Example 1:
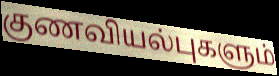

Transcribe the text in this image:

குணவியல்புகளும்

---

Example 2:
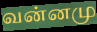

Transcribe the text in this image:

வன்னமு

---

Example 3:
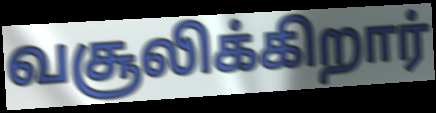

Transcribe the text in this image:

வசூலிக்கிறார்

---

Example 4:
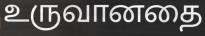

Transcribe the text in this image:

உருவானதை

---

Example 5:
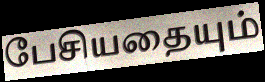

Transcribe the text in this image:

பேசியதையும்